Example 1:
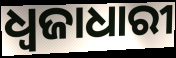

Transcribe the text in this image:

ଧ୍ଵଜାଧାରୀ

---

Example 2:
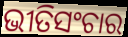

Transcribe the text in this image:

ଭୀତିସଂଚାର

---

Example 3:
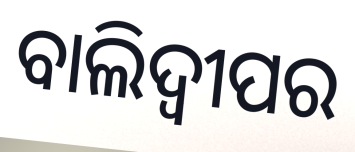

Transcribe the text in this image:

ବାଲିଦ୍ୱୀପର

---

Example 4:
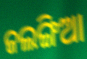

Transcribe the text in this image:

ଜଲଙ୍ଗିଆ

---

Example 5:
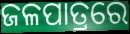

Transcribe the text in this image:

ଜଳପାତ୍ରରେ